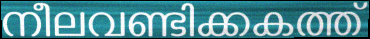
നീലവണ്ടിക്കകത്ത്